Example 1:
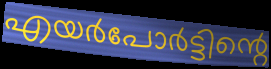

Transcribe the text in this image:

എയർപോർട്ടിന്റെ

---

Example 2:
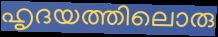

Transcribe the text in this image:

ഹൃദയത്തിലൊരു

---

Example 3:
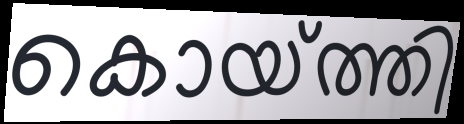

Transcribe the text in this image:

കൊയ്‌ത്തി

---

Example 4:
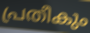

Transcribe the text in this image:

പ്രതീകും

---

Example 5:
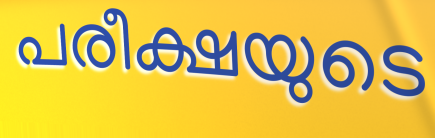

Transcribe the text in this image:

പരീക്ഷയുടെ